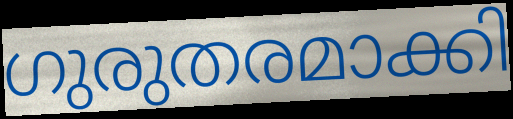
ഗുരുതരമാക്കി